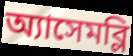
অ্যাসেমব্লি